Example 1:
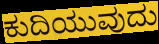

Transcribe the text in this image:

ಕುದಿಯುವುದು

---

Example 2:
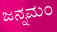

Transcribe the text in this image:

ಜನ್ನಮಂ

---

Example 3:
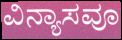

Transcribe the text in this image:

ವಿನ್ಯಾಸವೂ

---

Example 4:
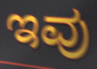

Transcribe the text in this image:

ಇವು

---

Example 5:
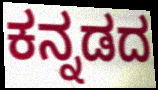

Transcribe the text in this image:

ಕನ್ನಡದ